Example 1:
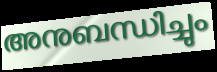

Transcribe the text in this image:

അനുബന്ധിച്ചും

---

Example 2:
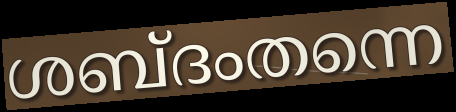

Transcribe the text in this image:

ശബ്ദംതന്നെ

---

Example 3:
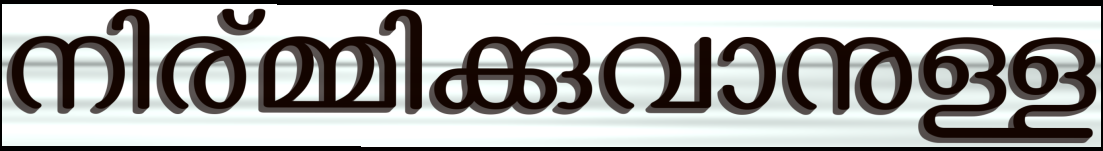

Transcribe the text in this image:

നിര്മ്മിക്കുവാനുള്ള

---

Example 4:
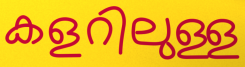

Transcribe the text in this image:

കളറിലുള്ള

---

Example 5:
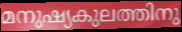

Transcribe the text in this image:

മനുഷ്യകുലത്തിനു